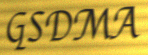
GSDMA